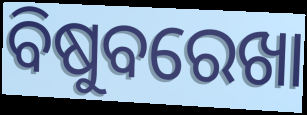
ବିଷୁବରେଖା